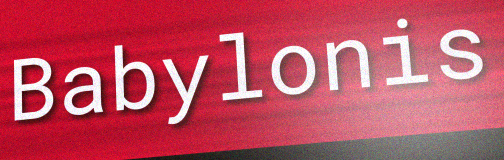
Babylonis